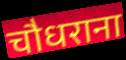
चौधराना